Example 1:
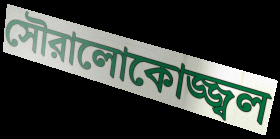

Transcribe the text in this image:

সৌরালোকোজ্জ্বল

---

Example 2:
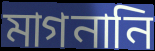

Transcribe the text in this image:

মাগনানি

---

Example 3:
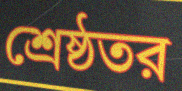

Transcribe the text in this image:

শ্রেষ্ঠতর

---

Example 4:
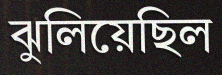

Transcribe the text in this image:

ঝুলিয়েছিল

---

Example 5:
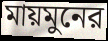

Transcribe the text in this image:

মায়মুনের